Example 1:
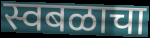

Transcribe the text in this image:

स्वबळाचा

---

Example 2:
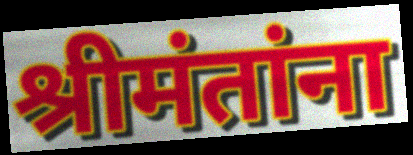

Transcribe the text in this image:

श्रीमंतांना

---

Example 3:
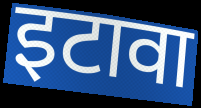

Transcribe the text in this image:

इटावा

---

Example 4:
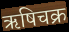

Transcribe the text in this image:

ऋषिचक्र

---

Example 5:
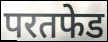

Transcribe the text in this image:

परतफेड